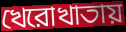
খেরোখাতায়